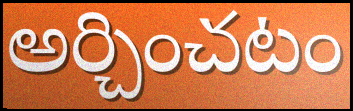
అర్చించటం